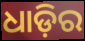
ଧାଡ଼ିର